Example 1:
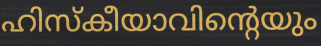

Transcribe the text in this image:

ഹിസ്കീയാവിന്റെയും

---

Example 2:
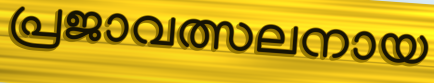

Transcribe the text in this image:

പ്രജാവത്സലനായ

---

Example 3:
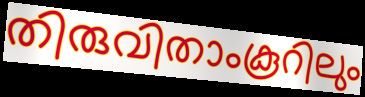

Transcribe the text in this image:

തിരുവിതാംകൂറിലും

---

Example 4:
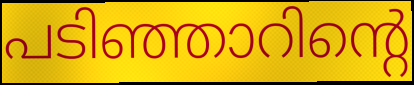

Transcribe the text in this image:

പടിഞ്ഞാറിന്റെ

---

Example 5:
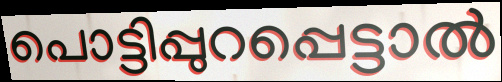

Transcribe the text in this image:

പൊട്ടിപ്പുറപ്പെട്ടാൽ